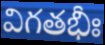
విగతభీః